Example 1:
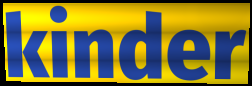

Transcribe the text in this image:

kinder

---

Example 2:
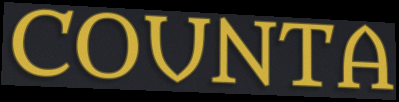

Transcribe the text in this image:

COUNTA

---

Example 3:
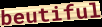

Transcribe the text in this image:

beutiful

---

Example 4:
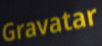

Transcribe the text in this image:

Gravatar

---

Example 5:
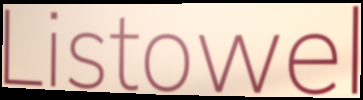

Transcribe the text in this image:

Listowel